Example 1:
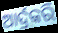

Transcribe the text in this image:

ଆର୍ଦ୍ରକରି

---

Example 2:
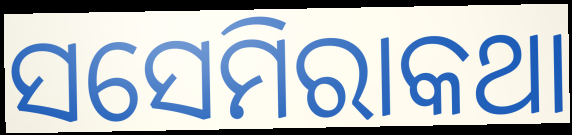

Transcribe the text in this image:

ସସେମିରାକଥା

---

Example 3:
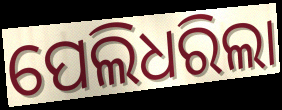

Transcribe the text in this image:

ପେଲିଧରିଲା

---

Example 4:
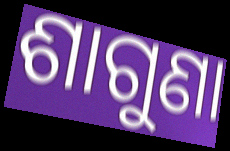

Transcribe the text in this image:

ଶାଗୁଣା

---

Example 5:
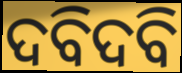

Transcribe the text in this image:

ଦବିଦବି